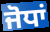
ਜੋਧਾਂ